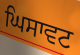
ਘਿਸਾਵਟ